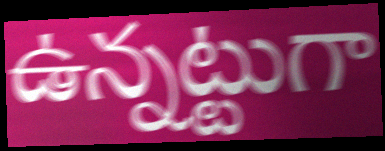
ఉన్నట్టుగా